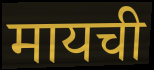
मायची